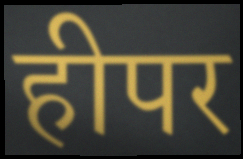
हीपर